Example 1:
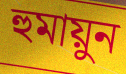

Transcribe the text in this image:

হুমায়ুন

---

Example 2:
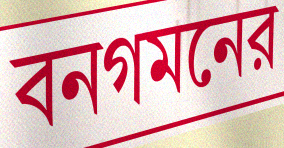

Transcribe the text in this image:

বনগমনের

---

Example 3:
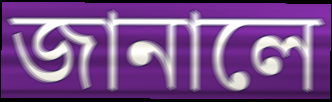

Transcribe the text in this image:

জানালে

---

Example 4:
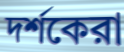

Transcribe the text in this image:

দর্শকেরা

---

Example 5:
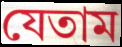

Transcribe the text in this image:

যেতাম